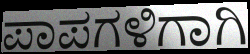
ಪಾಪಗಳಿಗಾಗಿ